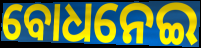
ବୋଧନେଇ